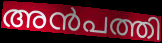
അൻപത്തി